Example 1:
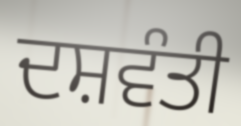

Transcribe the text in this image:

ਦਸ਼ਵੰਤੀ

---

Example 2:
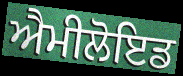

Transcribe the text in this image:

ਐਮੀਲੋਇਡ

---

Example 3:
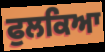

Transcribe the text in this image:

ਫੁਲਕਿਆ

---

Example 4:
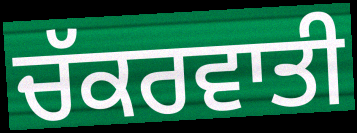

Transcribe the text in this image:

ਚੱਕਰਵਾਤੀ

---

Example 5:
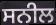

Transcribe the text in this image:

ਸਨੀਲ